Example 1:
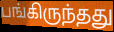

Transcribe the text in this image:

பங்கிருந்தது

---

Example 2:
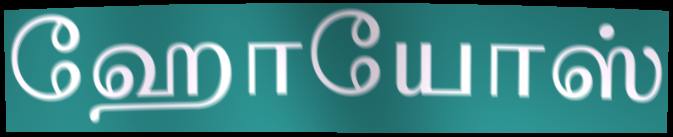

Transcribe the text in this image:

ஹோயோஸ்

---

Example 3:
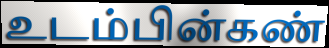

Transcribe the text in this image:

உடம்பின்கண்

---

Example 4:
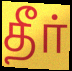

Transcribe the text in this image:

தீர்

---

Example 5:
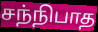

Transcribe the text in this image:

சந்நிபாத